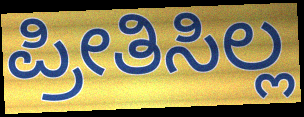
ಪ್ರೀತಿಸಿಲ್ಲ